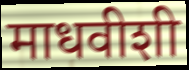
माधवीशी